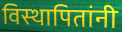
विस्थापितांनी